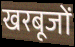
खरबूजों